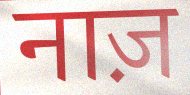
नाज़